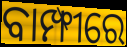
ବାମ୍ଫୀରେ